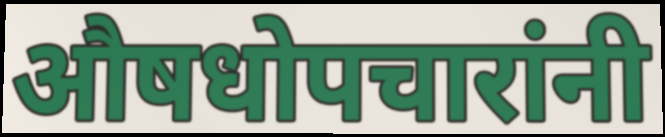
औषधोपचारांनी